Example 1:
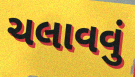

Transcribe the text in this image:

ચલાવવું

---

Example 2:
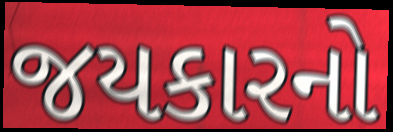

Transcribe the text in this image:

જયકારનો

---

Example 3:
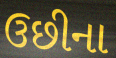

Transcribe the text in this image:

ઉછીના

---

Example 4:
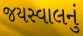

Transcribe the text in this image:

જયસ્વાલનું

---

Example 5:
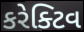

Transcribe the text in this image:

કરેક્ટિવ